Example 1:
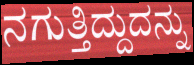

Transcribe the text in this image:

ನಗುತ್ತಿದ್ದುದನ್ನು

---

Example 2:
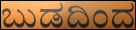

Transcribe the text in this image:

ಬುಡದಿಂದ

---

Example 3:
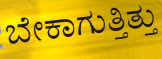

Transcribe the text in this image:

ಬೇಕಾಗುತ್ತಿತ್ತು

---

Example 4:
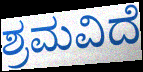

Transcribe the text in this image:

ಶ್ರಮವಿದೆ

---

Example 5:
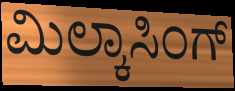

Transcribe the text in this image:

ಮಿಲ್ಕಾಸಿಂಗ್